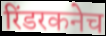
रिंडरकनेच